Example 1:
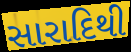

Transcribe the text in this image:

સારાદિથી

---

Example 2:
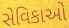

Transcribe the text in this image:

સેવિકાઓ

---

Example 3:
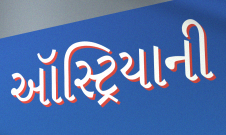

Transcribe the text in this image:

ઑસ્ટ્રિયાની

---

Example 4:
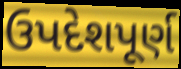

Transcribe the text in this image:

ઉપદેશપૂર્ણ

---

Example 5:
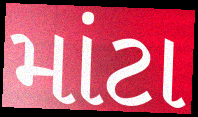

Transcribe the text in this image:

માંટા